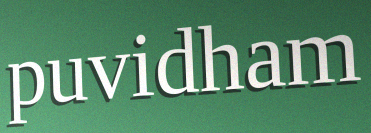
puvidham